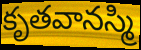
కృతవానస్మి